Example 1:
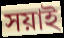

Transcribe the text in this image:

সয়াই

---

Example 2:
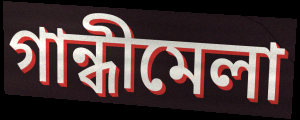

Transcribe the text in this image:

গান্ধীমেলা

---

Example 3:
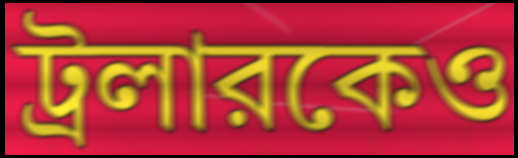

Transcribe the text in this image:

ট্রলারকেও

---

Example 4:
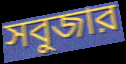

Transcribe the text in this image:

সবুজার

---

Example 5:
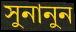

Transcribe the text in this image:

সুনানুন